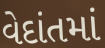
વેદાંતમાં